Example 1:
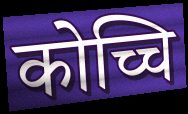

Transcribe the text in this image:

कोच्चि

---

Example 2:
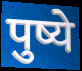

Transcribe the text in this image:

पुष्ये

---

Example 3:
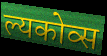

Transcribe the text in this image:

ल्यकोव्स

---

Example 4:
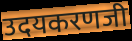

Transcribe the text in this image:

उदयकरणजी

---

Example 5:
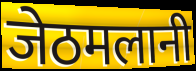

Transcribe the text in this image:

जेठमलानी